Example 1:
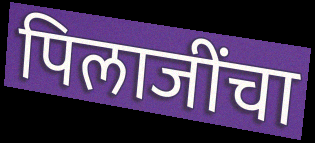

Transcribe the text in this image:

पिलाजींचा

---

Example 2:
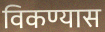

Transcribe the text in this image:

विकण्यास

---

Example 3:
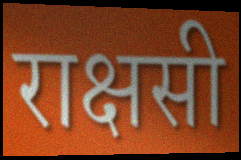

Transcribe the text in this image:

राक्षसी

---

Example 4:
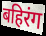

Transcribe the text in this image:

बहिरंग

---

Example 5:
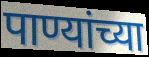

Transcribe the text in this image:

पाण्यांच्या